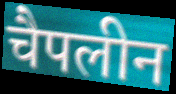
चैपलीन